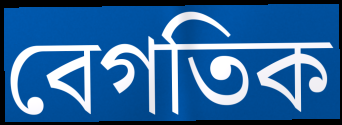
বেগতিক